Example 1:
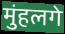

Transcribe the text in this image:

मुंहलगे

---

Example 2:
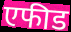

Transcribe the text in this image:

एफीड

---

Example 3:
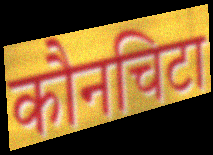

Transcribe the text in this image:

कौनचिटा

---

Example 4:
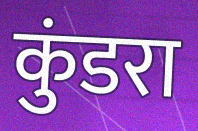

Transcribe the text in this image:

कुंडरा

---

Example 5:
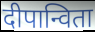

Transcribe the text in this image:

दीपान्विता